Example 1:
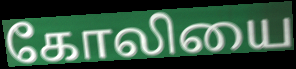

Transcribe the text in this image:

கோலியை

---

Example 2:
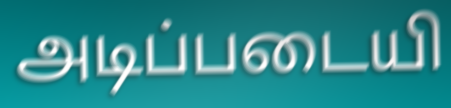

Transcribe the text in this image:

அடிப்படையி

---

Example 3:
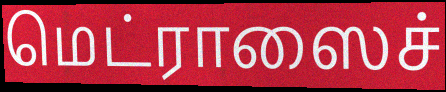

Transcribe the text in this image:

மெட்ராஸைச்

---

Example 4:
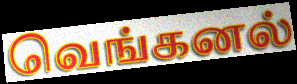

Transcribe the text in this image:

வெங்கனல்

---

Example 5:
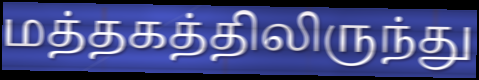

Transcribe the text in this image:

மத்தகத்திலிருந்து